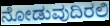
ನೋಡುವುದಿರಲಿ